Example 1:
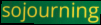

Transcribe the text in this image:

sojourning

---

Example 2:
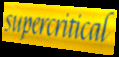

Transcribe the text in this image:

supercritical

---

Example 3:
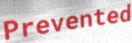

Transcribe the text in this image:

Prevented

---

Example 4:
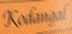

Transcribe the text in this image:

Kodangal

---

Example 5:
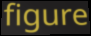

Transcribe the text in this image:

figure